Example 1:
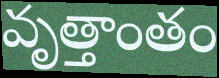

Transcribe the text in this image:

వృత్తాంతం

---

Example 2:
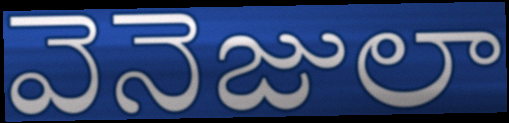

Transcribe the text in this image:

వెనెజులా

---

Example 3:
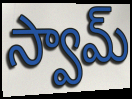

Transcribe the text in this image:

స్వామ్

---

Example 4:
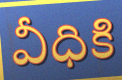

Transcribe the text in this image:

వీధికి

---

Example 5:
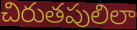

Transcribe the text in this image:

చిరుతపులిలా